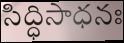
సిద్ధిసాధనః